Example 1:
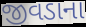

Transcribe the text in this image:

જીવડાના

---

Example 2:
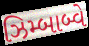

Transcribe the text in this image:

ઝિમ્બાબ્વે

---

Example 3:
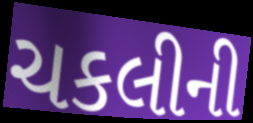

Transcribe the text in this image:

ચકલીની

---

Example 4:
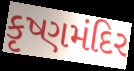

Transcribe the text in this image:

કૃષ્ણમંદિર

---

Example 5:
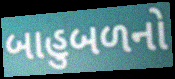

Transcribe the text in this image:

બાહુબળનો